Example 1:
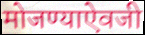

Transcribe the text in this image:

मोजण्याऐवजी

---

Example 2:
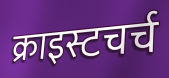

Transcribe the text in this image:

क्राइस्टचर्च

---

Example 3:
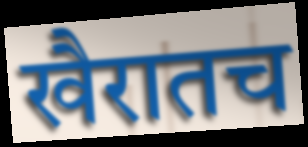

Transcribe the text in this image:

खैरातच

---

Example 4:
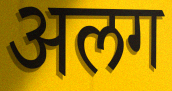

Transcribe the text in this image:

अलग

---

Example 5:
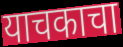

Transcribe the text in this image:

याचकाचा